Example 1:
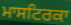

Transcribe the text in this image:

ਮਾਸਟਿਰਕਾ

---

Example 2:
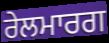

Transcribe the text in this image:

ਰੇਲਮਾਰਗ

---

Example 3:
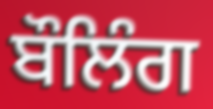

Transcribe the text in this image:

ਬੌਲਿੰਗ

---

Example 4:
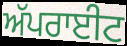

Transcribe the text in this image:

ਅੱਪਰਾਈਟ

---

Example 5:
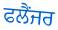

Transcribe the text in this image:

ਫਲੈਂਜਰ